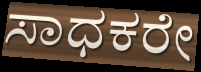
ಸಾಧಕರೇ